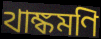
থাঙ্কমণি